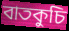
বাতকুচি